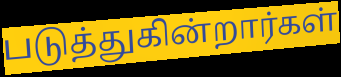
படுத்துகின்றார்கள்